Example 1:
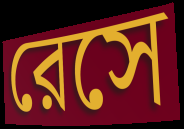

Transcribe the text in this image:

রেসে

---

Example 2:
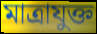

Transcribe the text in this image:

মাত্রাযুক্ত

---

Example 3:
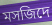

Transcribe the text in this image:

মসজিদে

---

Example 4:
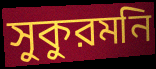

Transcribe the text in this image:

সুকুরমনি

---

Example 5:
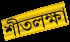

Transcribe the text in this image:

শীতলক্ষা